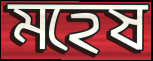
মহেষ